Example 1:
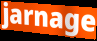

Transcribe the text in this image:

jarnage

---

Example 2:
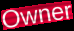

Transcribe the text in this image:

Owner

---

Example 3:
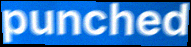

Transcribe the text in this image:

punched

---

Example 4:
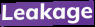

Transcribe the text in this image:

Leakage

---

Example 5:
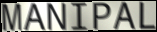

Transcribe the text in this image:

MANIPAL